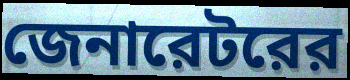
জেনারেটরের